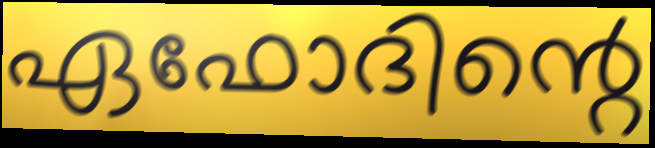
ഏഫോദിന്റെ